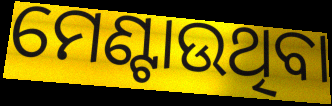
ମେଣ୍ଟାଉଥିବା